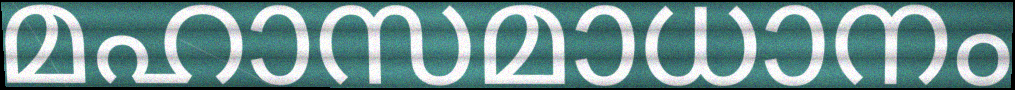
മഹാസമാധാനം